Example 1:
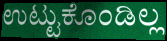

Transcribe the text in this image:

ಉಟ್ಟುಕೊಂಡಿಲ್ಲ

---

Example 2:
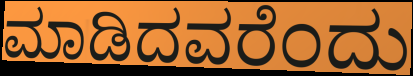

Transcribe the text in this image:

ಮಾಡಿದವರೆಂದು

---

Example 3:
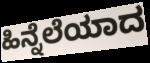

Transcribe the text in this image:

ಹಿನ್ನೆಲೆಯಾದ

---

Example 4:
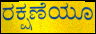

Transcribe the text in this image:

ರಕ್ಷಣೆಯೂ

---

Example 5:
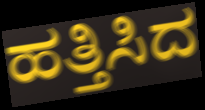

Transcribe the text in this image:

ಹತ್ತಿಸಿದ